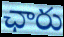
ఛారు